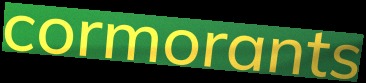
cormorants